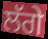
ਲੱਗੇ